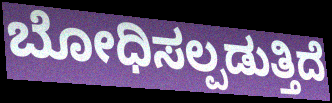
ಬೋಧಿಸಲ್ಪಡುತ್ತಿದೆ